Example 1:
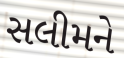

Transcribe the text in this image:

સલીમને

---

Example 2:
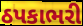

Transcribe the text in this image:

ઠપકાભરી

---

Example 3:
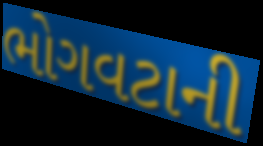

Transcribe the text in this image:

ભોગવટાની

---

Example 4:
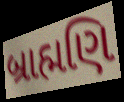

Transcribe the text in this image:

બ્રાહ્મણિ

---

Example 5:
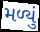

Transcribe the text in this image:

મળ્યું